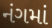
નંગમાં